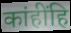
कांहींहि